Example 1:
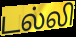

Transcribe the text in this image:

டல்லி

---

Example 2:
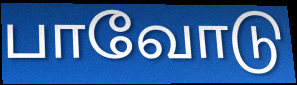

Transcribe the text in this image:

பாவோடு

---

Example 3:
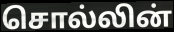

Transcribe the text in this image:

சொல்லின்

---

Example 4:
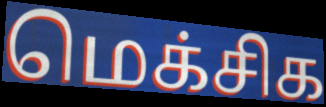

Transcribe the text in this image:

மெக்சிக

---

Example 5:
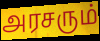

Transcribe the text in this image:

அரசரும்